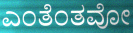
ಎಂತೆಂತವೋ